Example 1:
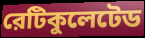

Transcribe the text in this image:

রেটিকুলেটেড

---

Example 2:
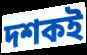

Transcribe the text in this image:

দশকই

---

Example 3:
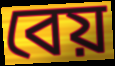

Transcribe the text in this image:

বেয়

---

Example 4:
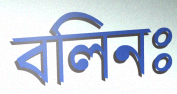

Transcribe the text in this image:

বলিনঃ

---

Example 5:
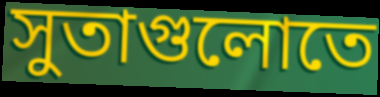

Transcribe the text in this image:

সুতাগুলোতে